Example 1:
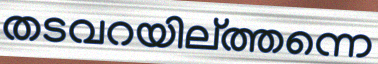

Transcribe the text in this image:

തടവറയില്ത്തന്നെ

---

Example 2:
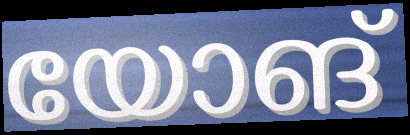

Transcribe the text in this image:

യോങ്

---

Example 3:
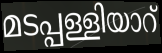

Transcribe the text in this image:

മടപ്പള്ളിയാറ്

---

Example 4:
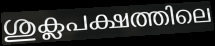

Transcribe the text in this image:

ശുക്ലപക്ഷത്തിലെ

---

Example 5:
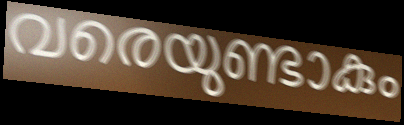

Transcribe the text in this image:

വരെയുണ്ടാകും